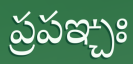
ప్రపఞ్చః